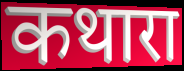
कथारा